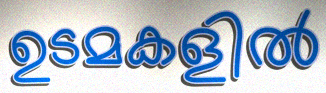
ഉടമകളിൽ